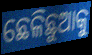
ଛେଳିଛୁଆକୁ